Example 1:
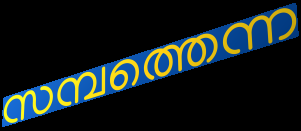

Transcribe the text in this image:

സമ്പത്തെന്ന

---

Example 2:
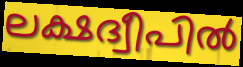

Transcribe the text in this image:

ലക്ഷദ്വീപിൽ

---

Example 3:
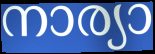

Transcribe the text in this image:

നാര്യാ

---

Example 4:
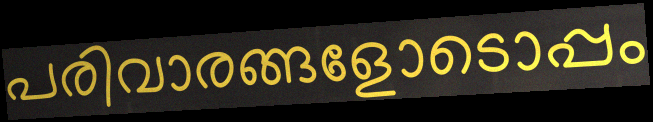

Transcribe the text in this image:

പരിവാരങ്ങളോടൊപ്പം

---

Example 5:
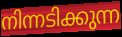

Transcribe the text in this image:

നിന്നടിക്കുന്ന